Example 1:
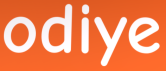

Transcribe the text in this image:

odiye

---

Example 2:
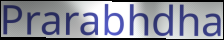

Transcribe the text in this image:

Prarabhdha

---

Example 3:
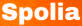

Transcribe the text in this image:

Spolia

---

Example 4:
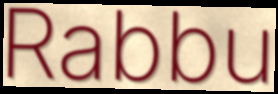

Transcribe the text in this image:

Rabbu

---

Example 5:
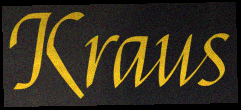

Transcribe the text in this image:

Kraus